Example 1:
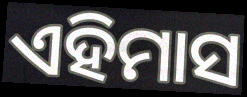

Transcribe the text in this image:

ଏହିମାସ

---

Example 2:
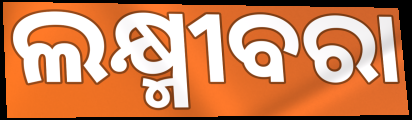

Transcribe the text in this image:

ଲକ୍ଷ୍ମୀବରା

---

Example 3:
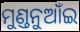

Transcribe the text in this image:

ମୁଣ୍ଡନୁଆଁଇ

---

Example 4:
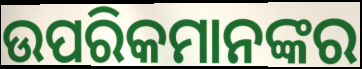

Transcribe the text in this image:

ଉପରିକମାନଙ୍କର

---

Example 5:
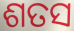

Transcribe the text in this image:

ଶତସ